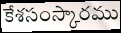
కేశసంస్కారము